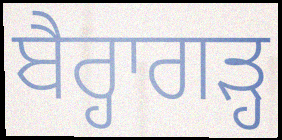
ਬੈਰ੍ਹਾਗੜ੍ਹ